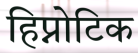
हिप्नोटिक